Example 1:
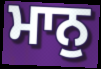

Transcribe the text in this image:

ਮਾਨੁ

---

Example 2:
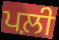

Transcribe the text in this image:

ਪਲ਼ੀ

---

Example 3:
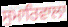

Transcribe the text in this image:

ਸੁਮਾਰਿਵਾਲਾ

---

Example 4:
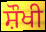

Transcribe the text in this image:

ਸ਼ੌਖੀ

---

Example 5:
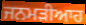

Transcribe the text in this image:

ਜਨਮੜੀਆਹ